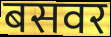
बसवर